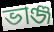
ভাঞ্জ